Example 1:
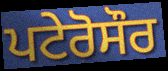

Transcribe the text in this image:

ਪਟੇਰੋਸੌਰ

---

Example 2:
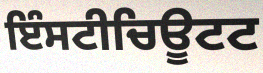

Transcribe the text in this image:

ਇੰਸਟੀਚਿਊਟਟ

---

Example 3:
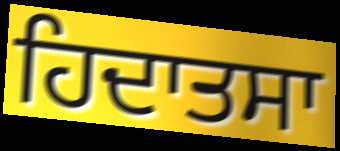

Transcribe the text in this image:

ਹਿਦਾਤਸਾ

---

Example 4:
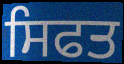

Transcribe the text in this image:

ਸਿਫਤ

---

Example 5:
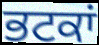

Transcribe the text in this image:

ਭਟਕਾਂ